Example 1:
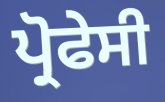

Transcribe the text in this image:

ਪ੍ਰੋਫੇਸੀ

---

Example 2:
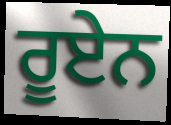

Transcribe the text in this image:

ਰੂਏਨ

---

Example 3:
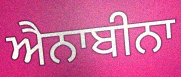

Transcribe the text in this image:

ਐਨਾਬੀਨਾ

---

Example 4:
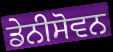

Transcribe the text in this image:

ਡੇਨੀਸੋਵਨ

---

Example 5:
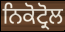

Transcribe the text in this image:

ਨਿਕੋਟ੍ਰੋਲ